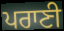
ਪਰਾਣੀ